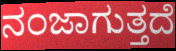
ನಂಜಾಗುತ್ತದೆ